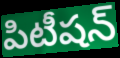
పిటీషన్